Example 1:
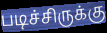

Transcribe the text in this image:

படிச்சிருக்கு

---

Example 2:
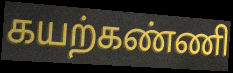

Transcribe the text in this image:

கயற்கண்ணி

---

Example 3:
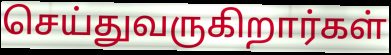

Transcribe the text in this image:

செய்துவருகிறார்கள்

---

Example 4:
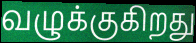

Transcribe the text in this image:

வழுக்குகிறது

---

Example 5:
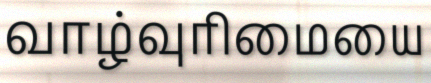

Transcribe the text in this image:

வாழ்வுரிமையை